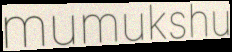
mumukshu